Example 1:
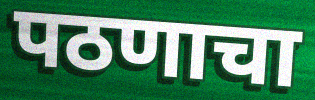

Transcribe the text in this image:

पठणाचा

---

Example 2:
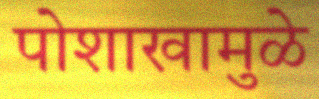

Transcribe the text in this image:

पोशाखामुळे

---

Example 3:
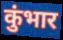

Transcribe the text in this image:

कुंभार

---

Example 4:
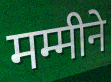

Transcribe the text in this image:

मम्मीने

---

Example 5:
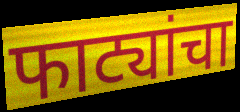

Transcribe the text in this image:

फाट्यांचा